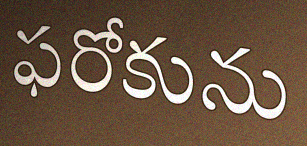
ఫరోకును